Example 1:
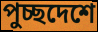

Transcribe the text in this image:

পুচ্ছদেশে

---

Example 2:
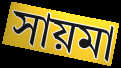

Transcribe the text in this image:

সায়মা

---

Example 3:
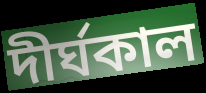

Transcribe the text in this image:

দীর্ঘকাল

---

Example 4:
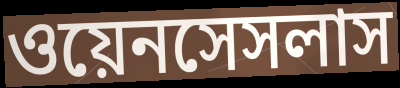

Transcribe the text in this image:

ওয়েনসেসলাস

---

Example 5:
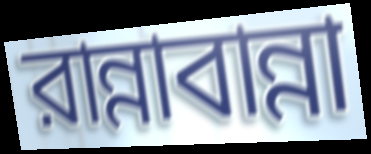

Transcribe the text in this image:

রান্নাবান্না